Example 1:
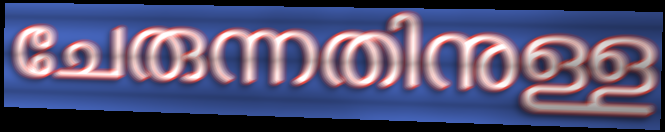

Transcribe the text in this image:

ചേരുന്നതിനുള്ള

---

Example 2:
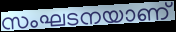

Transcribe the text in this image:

സംഘടനയാണ്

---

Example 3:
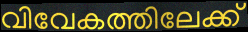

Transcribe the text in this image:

വിവേകത്തിലേക്ക്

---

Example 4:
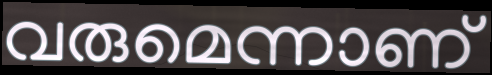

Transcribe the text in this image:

വരുമെന്നാണ്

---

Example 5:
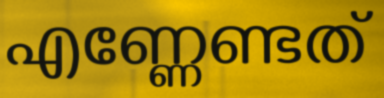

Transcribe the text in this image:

എണ്ണേണ്ടത്